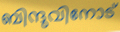
ബിന്ദുവിനോട്